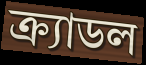
ক্র্যাডল